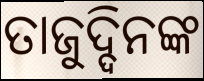
ତାଜୁଦ୍ଦିନଙ୍କ